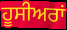
ਹੂਸੀਅਰਾਂ